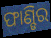
ଫାଣ୍ଡିର